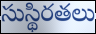
సుస్థిరతలు